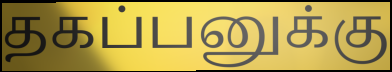
தகப்பனுக்கு